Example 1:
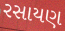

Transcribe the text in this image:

રસાયણ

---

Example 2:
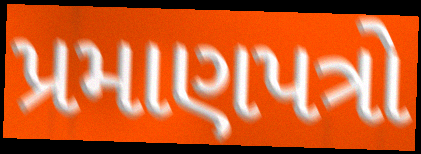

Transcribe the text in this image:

પ્રમાણપત્રો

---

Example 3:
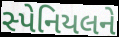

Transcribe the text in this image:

સ્પેનિયલને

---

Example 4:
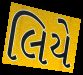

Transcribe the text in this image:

લિયે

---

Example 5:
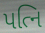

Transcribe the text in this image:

પત્નિ